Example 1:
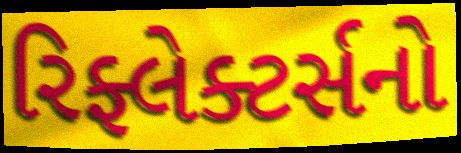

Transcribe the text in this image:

રિફ્લેક્ટર્સનો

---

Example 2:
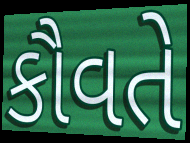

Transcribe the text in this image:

કૌવતે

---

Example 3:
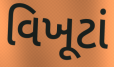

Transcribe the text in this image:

વિખૂટાં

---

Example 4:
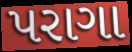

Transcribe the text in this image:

પરાગા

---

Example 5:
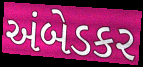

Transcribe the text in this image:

અંબેડકર